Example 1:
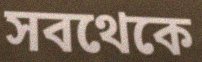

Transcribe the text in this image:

সবথেকে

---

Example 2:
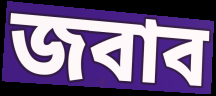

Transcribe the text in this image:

জবাব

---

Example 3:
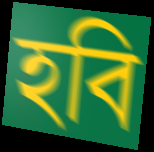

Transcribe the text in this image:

হবি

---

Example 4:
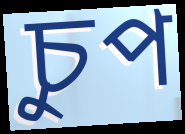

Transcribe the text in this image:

চুপ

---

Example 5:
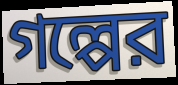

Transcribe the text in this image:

গল্পের